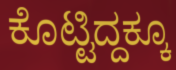
ಕೊಟ್ಟಿದ್ದಕ್ಕೂ